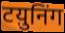
टय़ुनिंग